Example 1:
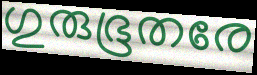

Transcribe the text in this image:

ഗുരുഭൂതരേ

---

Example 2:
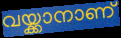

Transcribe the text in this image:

വയ്ക്കാനാണ്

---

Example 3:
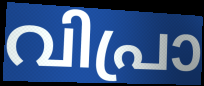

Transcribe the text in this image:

വിപ്രാ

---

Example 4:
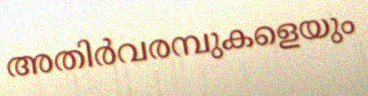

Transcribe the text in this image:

അതിർവരമ്പുകളെയും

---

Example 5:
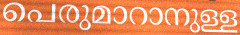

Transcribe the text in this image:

പെരുമാറാനുള്ള